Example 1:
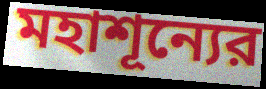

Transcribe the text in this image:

মহাশূন্যের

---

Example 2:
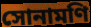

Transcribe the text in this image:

সোনামণি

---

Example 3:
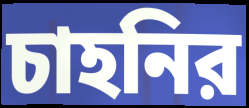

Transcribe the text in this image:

চাহনির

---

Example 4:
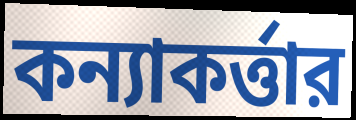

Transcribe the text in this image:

কন্যাকর্ত্তার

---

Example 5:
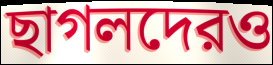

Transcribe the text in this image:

ছাগলদেরও